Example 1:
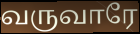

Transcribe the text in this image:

வருவாரே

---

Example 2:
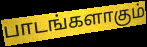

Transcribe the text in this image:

பாடங்களாகும்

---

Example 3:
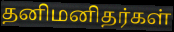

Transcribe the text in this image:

தனிமனிதர்கள்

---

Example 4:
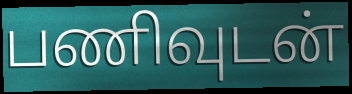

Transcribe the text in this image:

பணிவுடன்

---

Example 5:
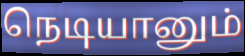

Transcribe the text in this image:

நெடியானும்